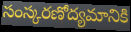
సంస్కరణోద్యమానికి